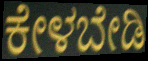
ಕೇಳಬೇಡಿ